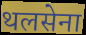
थलसेना